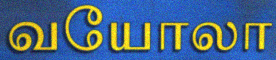
வயோலா